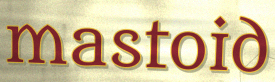
mastoid